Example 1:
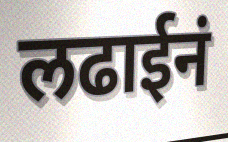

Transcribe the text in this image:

लढाईनं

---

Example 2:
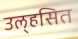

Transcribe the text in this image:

उल्हसित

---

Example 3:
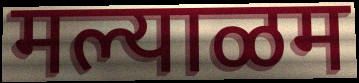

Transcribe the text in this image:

मल्याळम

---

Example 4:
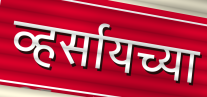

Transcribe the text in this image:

व्हर्सायच्या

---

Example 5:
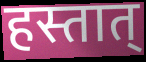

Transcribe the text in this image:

हस्तात्